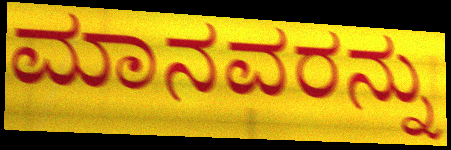
ಮಾನವರನ್ನು